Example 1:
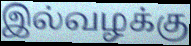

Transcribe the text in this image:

இல்வழக்கு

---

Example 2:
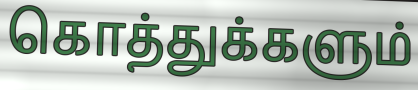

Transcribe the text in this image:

கொத்துக்களும்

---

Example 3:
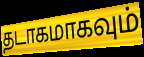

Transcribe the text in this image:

தடாகமாகவும்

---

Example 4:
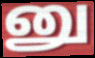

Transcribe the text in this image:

னு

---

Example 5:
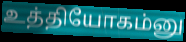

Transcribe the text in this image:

உத்தியோகம்னு